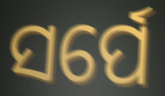
ସର୍ପେ